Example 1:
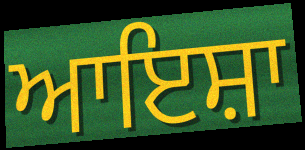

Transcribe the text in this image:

ਆਇਸ਼ਾ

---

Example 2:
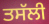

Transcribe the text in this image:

ਤਸੱਲੀ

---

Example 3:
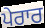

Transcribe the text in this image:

ਪੇਰਾਰ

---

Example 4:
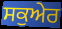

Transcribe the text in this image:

ਸਕੁਅੇਰ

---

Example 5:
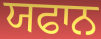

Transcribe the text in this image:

ਯਫਾਨ